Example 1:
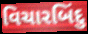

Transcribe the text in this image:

વિચારબિંદુ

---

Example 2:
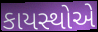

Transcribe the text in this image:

કાયસ્થોએ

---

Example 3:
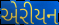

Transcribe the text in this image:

એરીયન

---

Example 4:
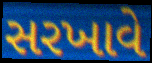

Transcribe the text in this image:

સરખાવે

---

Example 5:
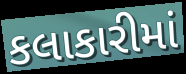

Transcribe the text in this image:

કલાકારીમાં